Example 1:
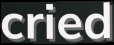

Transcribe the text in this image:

cried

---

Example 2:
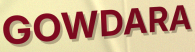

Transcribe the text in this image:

GOWDARA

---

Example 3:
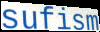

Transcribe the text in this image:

sufism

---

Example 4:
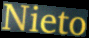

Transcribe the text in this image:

Nieto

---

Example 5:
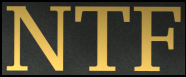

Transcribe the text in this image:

NTF